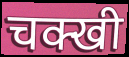
चक्खी